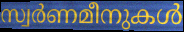
സ്വർണമീനുകൾ